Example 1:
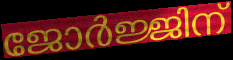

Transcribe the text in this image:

ജോർജ്ജിന്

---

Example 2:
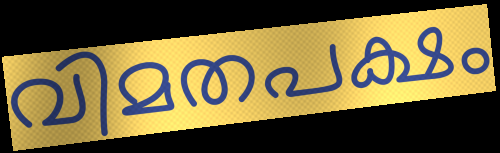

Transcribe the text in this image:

വിമതപക്ഷം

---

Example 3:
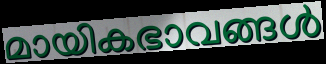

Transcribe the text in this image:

മായികഭാവങ്ങൾ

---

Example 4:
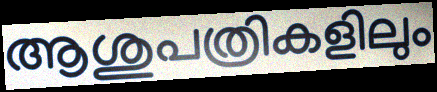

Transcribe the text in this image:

ആശുപത്രികളിലും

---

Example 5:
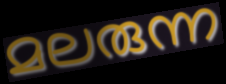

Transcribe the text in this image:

മലരുന്ന